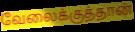
வேலைக்குத்தான்